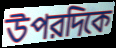
উপরদিকে